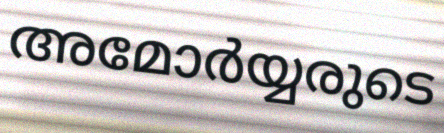
അമോർയ്യരുടെ